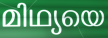
മിഥ്യയെ